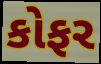
કોફર